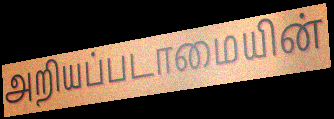
அறியப்படாமையின்